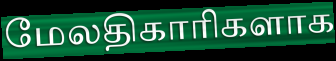
மேலதிகாரிகளாக